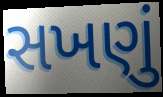
સખણું